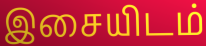
இசையிடம்